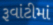
રૂવાંટીમાં